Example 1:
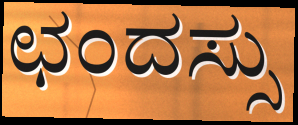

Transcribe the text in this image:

ಛಂದಸ್ಸು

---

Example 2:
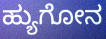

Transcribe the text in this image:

ಹ್ಯುಗೋನ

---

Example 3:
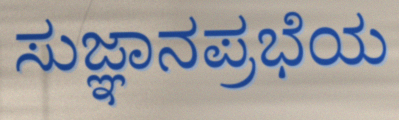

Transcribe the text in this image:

ಸುಜ್ಞಾನಪ್ರಭೆಯ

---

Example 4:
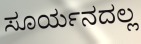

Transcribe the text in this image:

ಸೂರ್ಯನದಲ್ಲ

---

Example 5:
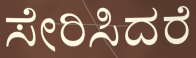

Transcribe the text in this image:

ಸೇರಿಸಿದರೆ